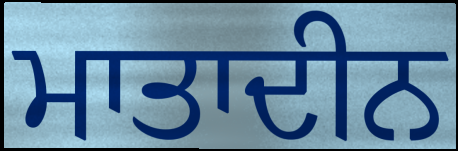
ਮਾਤਾਦੀਨ